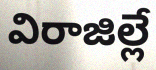
విరాజిల్లే